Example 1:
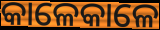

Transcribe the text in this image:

କାଳେକାଳେ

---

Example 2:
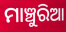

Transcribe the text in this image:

ମାଞ୍ଚୁରିଆ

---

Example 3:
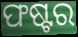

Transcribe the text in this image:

ଫଷ୍ଟର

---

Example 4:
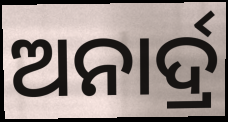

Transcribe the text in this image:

ଅନାର୍ଦ୍ର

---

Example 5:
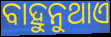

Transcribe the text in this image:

ବାହୁନୁଥାଏ